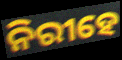
ନିରୀହେ